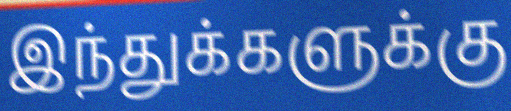
இந்துக்களுக்கு